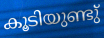
കൂടിയുണ്ടു്